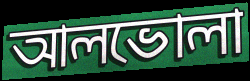
আলভোলা